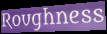
Roughness